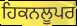
ਹਿਕਨਲੂਪਰ